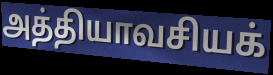
அத்தியாவசியக்